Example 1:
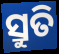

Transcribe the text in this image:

ସ୍ରୁତି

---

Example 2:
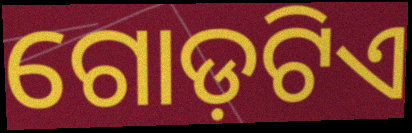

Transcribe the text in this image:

ଗୋଡ଼ଟିଏ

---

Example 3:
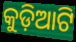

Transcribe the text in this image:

କୁଡ଼ିଆଟି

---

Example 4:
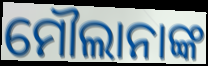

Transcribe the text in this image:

ମୌଲାନାଙ୍କ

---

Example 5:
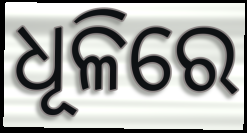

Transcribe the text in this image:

ଧୂଳିରେ